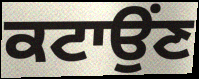
ਕਟਾਉਂਣ